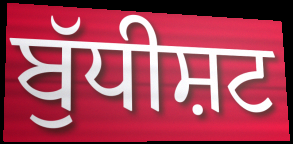
ਬੁੱਧੀਸ਼ਟ